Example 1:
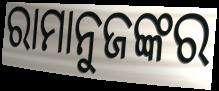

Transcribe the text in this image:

ରାମାନୁଜଙ୍କର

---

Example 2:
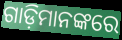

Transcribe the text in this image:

ଗାଡ଼ିମାନଙ୍କରେ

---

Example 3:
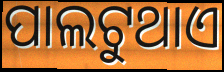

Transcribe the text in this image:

ପାଲଟୁଥାଏ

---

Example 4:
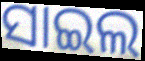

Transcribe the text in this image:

ସାଇଲ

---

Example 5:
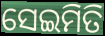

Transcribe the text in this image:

ସେଇମିତି